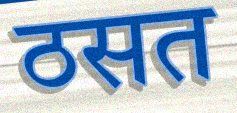
ठसत